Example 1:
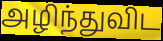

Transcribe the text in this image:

அழிந்துவிட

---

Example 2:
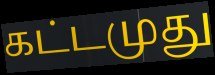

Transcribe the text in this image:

கட்டமுது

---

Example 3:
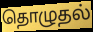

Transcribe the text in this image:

தொழுதல்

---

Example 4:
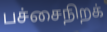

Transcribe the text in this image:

பச்சைநிறக்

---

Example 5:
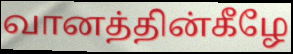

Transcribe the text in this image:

வானத்தின்கீழே